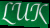
LUK